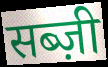
सब्ज़ी